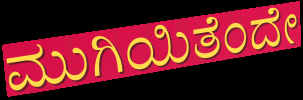
ಮುಗಿಯಿತೆಂದೇ